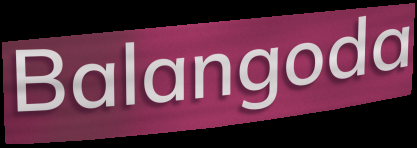
Balangoda